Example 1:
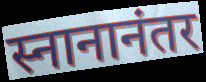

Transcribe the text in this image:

स्नानानंतर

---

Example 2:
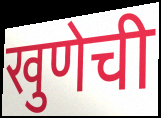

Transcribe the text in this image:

खुणेची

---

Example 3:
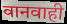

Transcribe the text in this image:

वानवाही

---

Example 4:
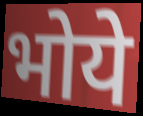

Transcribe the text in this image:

भोये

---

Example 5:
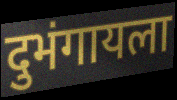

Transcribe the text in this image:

दुभंगायला